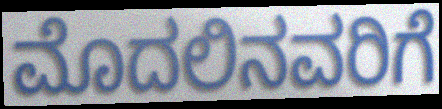
ಮೊದಲಿನವರಿಗೆ